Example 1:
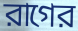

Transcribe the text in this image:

রাগের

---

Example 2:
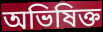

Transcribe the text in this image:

অভিষিক্ত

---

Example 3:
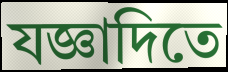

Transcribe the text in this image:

যজ্ঞাদিতে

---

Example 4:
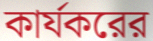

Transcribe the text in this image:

কার্যকরের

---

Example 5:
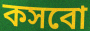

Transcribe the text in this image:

কসবো